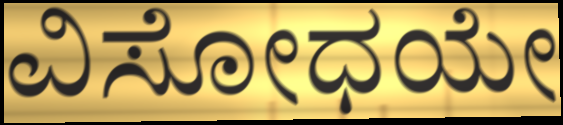
ವಿಸೋಧಯೇ